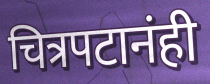
चित्रपटानंही